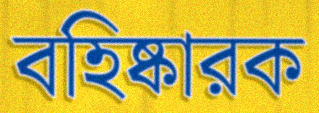
বহিষ্কারক